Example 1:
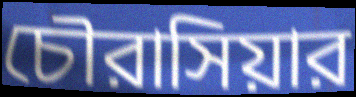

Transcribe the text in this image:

চৌরাসিয়ার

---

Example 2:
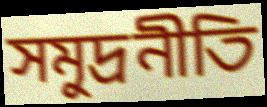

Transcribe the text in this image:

সমুদ্রনীতি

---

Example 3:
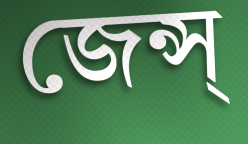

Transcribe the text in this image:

জেন্স্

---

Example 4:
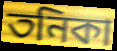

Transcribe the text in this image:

তনিকা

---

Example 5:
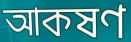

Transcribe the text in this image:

আকষণ